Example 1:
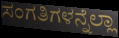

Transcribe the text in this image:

ಸಂಗತಿಗಳನ್ನೆಲ್ಲಾ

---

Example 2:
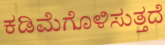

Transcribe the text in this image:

ಕಡಿಮೆಗೊಳಿಸುತ್ತದೆ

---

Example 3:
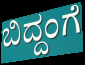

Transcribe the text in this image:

ಬಿದ್ದಂಗೆ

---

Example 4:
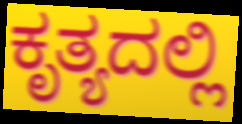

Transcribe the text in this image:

ಕೃತ್ಯದಲ್ಲಿ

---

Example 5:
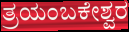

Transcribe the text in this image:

ತ್ರಯಂಬಕೇಶ್ವರ